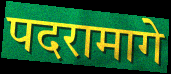
पदरामागे